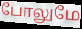
போலுமே